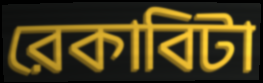
রেকাবিটা